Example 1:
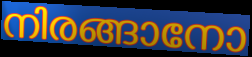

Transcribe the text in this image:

നിരങ്ങാനോ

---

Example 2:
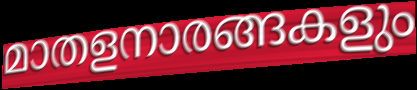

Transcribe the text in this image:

മാതളനാരങ്ങകളും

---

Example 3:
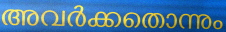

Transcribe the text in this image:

അവർക്കതൊന്നും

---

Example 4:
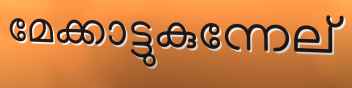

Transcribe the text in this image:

മേക്കാട്ടുകുന്നേല്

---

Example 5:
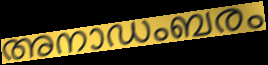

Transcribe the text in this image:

അനാഡംബരം